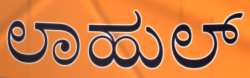
ಲಾಹುಲ್